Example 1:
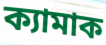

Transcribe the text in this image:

ক্যামাক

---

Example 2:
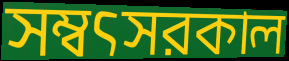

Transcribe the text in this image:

সম্বৎসরকাল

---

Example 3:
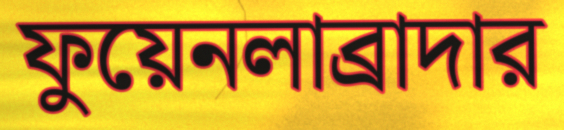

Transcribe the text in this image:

ফুয়েনলাব্রাদার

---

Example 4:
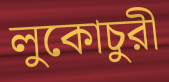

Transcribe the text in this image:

লুকোচুরী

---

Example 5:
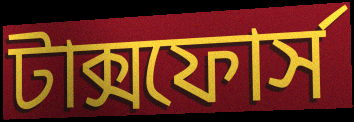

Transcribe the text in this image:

টাক্সফোর্স